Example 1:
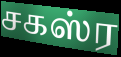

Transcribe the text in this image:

சகஸ்ர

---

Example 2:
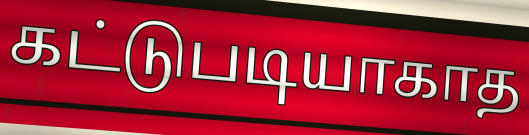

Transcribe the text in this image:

கட்டுபடியாகாத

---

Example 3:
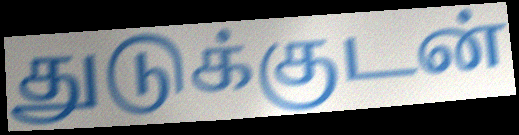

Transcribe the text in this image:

துடுக்குடன்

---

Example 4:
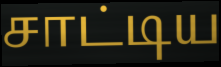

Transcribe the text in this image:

சாட்டிய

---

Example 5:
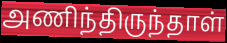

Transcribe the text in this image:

அணிந்திருந்தாள்